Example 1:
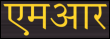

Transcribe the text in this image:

एमआर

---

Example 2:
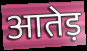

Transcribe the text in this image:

आतेड़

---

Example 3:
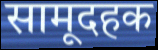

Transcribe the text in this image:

सामूदहक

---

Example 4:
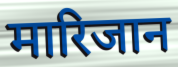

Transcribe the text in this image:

मारिजान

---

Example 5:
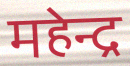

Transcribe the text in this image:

महेन्द्र